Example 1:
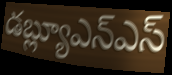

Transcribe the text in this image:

డబ్ల్యూఎన్ఎస్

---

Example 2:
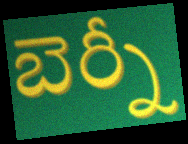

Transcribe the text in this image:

బెర్నీ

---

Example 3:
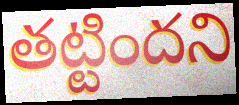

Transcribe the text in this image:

తట్టిందని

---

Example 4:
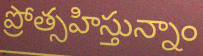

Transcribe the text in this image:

ప్రోత్సహిస్తున్నాం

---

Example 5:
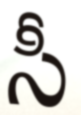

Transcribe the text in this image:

సీ